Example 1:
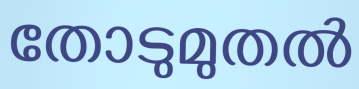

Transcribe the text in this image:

തോടുമുതൽ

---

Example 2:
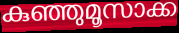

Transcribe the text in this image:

കുഞ്ഞുമൂസാക്ക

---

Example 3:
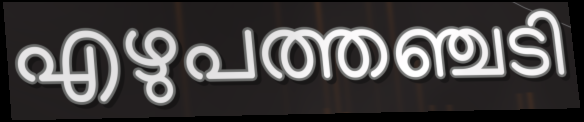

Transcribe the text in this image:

എഴുപത്തഞ്ചടി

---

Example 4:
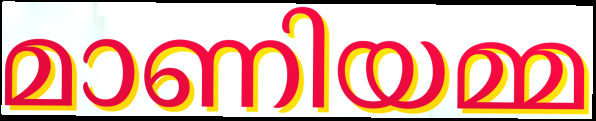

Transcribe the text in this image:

മാണിയമ്മ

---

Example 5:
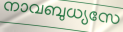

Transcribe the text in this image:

നാവബുധ്യസേ